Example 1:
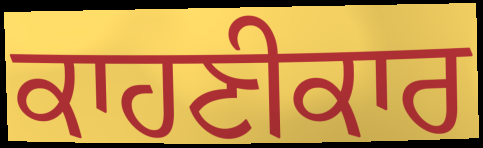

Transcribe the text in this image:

ਕਾਹਣੀਕਾਰ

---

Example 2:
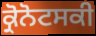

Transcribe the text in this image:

ਕ੍ਰੋਨੋਟਸਕੀ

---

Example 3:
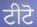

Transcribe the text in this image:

ਟੀਟੋ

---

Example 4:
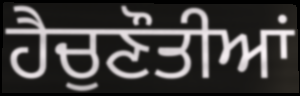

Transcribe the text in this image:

ਹੈਚੁਣੌਤੀਆਂ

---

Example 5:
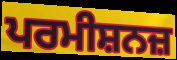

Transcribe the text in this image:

ਪਰਮੀਸ਼ਨਜ਼